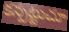
కన్పట్టుచూ